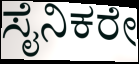
ಸೈನಿಕರೇ